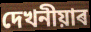
দেখনীয়াৰ